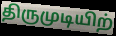
திருமுடியிற்